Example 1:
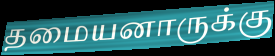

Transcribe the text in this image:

தமையனாருக்கு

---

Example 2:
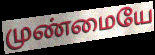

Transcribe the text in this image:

முண்மையே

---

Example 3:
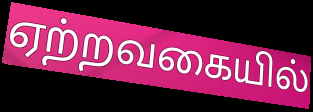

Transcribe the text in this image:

ஏற்றவகையில்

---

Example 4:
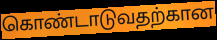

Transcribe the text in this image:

கொண்டாடுவதற்கான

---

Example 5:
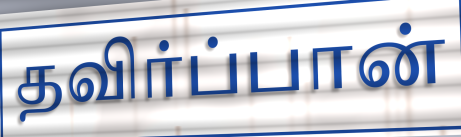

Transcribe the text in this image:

தவிர்ப்பான்